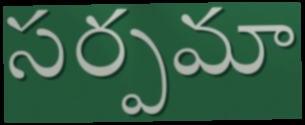
సర్పమా